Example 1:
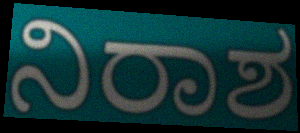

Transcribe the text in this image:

ನಿರಾಶ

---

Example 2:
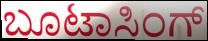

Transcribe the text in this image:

ಬೂಟಾಸಿಂಗ್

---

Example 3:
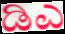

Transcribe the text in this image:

ಡಿಎ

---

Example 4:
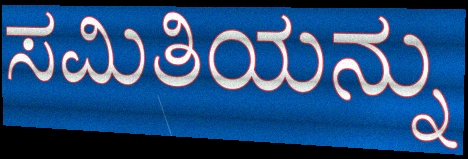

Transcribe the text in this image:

ಸಮಿತಿಯನ್ನು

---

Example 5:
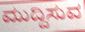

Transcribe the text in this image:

ಮುದ್ದಿಸುವ